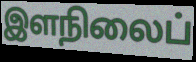
இளநிலைப்